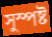
সুস্পষ্ট